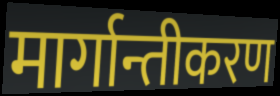
मार्गान्तीकरण